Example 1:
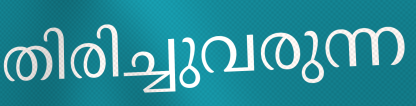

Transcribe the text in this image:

തിരിച്ചുവരുന്ന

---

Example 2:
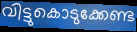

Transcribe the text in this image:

വിട്ടുകൊടുക്കേണ്ട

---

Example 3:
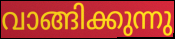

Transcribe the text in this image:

വാങ്ങിക്കുന്നു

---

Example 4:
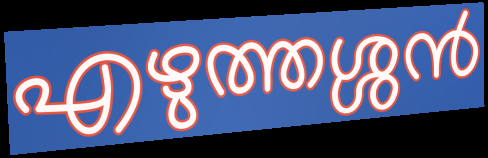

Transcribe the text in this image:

എഴുത്തശ്ശൻ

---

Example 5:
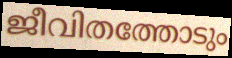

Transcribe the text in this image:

ജീവിതത്തോടും